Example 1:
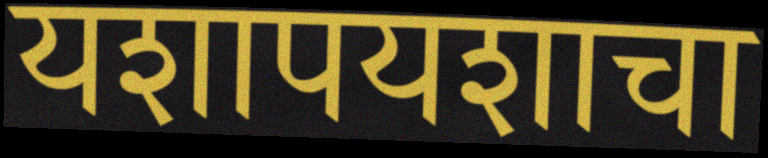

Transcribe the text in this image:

यशापयशाचा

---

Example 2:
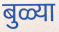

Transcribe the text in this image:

बुळ्या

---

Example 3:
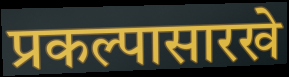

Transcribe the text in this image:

प्रकल्पासारखे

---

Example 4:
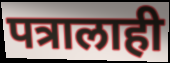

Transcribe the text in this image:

पत्रालाही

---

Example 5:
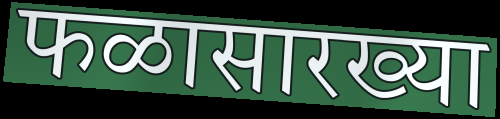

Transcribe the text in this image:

फळासारख्या